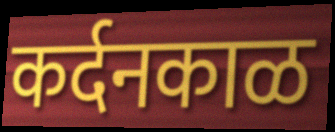
कर्दनकाळ